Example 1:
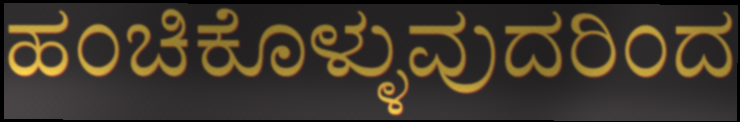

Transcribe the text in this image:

ಹಂಚಿಕೊಳ್ಳುವುದರಿಂದ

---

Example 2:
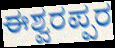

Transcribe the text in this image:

ಈಶ್ವರಪ್ಪರ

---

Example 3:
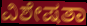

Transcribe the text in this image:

ವಿಶೇಷತಾ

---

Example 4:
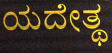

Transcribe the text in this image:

ಯದೇತ್ಥ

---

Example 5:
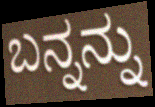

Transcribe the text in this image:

ಬನ್ನನ್ನು